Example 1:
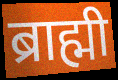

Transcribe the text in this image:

ब्राह्मी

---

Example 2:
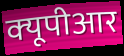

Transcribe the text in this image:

क्यूपीआर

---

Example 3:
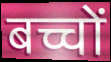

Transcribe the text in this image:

बच्चों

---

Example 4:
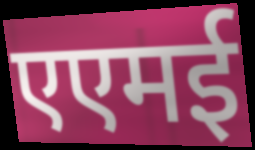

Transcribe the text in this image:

एएमई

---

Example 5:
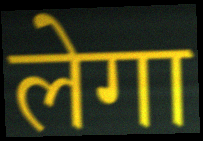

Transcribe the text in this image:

लेगा